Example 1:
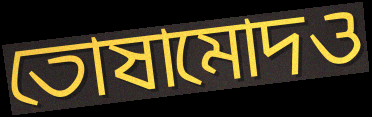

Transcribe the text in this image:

তোষামোদও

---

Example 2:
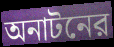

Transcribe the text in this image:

অনাটনের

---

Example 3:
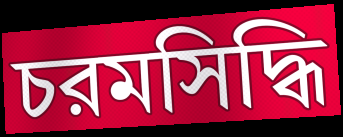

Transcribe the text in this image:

চরমসিদ্ধি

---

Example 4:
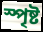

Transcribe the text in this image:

স্পৃষ্ট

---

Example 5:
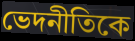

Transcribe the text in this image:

ভেদনীতিকে